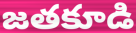
జతకూడి